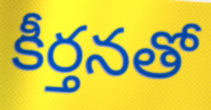
కీర్తనతో